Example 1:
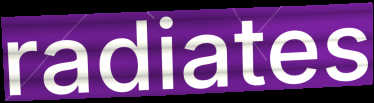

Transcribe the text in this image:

radiates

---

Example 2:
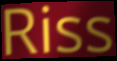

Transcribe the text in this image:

Riss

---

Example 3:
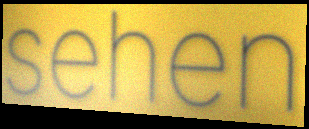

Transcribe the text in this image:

sehen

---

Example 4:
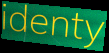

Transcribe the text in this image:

identy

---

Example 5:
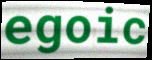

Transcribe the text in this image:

egoic